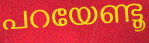
പറയേണ്ടൂ